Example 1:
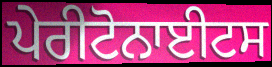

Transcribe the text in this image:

ਪੇਰੀਟੋਨਾਈਟਸ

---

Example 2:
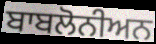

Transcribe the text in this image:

ਬਾਬਲੋਨੀਅਨ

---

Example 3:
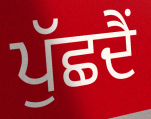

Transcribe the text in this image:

ਪੁੱਛਦੈਂ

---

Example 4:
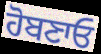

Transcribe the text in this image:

ਹੋਬਣਾਓ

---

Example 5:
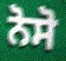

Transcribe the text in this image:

ਨੋਸੋ